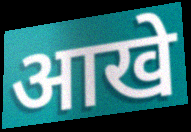
आखे